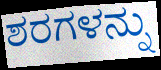
ಶರಗಳನ್ನು